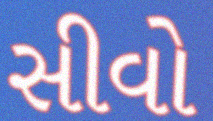
સીવો